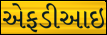
એફડીઆઇ